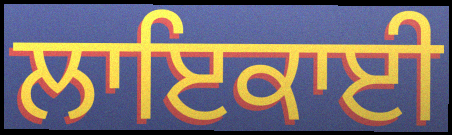
ਲਾਇਕਾਈ